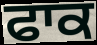
ਫਾਕ